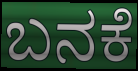
ಬನಕೆ